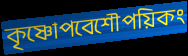
কৃষ্ণোপবেশৌপয়িকং